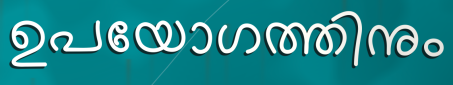
ഉപയോഗത്തിനും